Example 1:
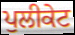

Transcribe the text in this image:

ਪੁਲੀਕੇਟ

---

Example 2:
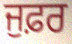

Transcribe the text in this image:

ਜੁਫ਼ਰ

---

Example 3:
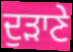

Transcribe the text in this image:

ਦੁੜਾਣੇ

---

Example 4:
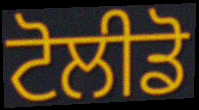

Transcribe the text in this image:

ਟੋਲੀਡੋ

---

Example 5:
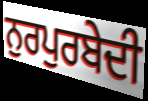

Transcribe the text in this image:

ਨੁਰਪੁਰਬੇਦੀ